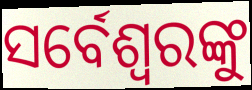
ସର୍ବେଶ୍ୱରଙ୍କୁ